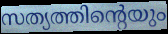
സത്യത്തിന്റെയും